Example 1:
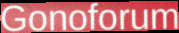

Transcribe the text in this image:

Gonoforum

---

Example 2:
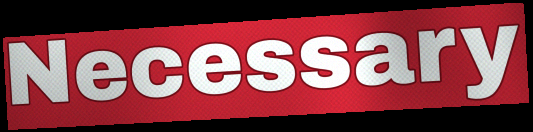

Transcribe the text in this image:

Necessary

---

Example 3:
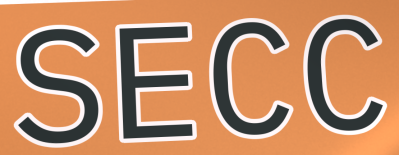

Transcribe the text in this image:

SECC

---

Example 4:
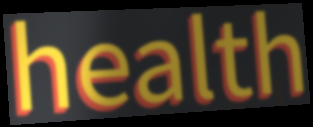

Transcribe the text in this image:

health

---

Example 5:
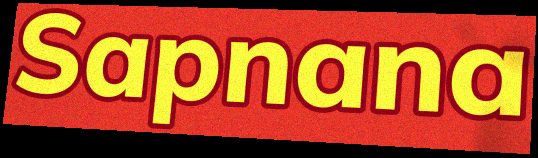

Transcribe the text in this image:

Sapnana